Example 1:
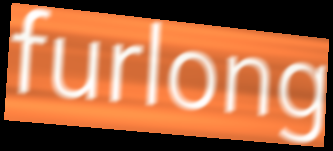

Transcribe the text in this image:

furlong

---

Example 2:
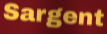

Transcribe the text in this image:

Sargent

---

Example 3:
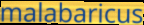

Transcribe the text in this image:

malabaricus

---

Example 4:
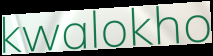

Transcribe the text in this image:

kwalokho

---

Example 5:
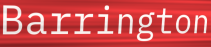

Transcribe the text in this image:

Barrington